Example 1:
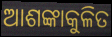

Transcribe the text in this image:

ଆଶଙ୍କାକୁଳିତ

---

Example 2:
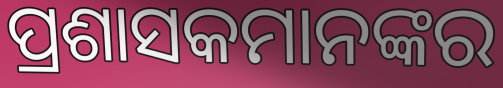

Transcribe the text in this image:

ପ୍ରଶାସକମାନଙ୍କର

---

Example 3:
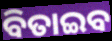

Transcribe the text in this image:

ବିତାଇବ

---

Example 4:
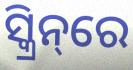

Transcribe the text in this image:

ସ୍କ୍ରିନ୍‌ରେ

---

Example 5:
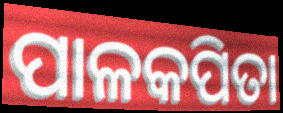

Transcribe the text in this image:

ପାଳକପିତା